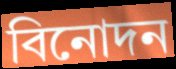
বিনোদন